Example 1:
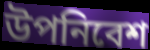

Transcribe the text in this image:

উপনিবেশ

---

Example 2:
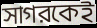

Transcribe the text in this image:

সাগরকেই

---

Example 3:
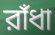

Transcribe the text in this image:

রাঁধা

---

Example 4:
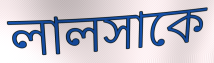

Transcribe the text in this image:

লালসাকে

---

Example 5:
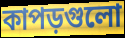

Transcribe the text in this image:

কাপড়গুলো